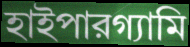
হাইপারগ্যামি